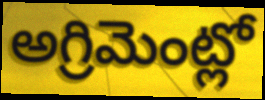
అగ్రిమెంట్లో